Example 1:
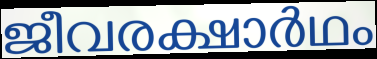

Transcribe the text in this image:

ജീവരക്ഷാർഥം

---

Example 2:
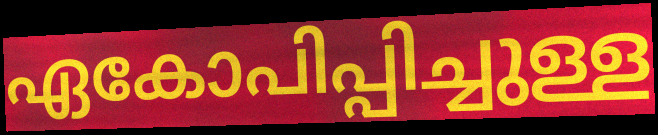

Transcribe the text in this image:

ഏകോപിപ്പിച്ചുള്ള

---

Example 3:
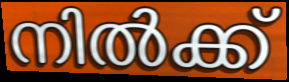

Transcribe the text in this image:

നിൽക്ക്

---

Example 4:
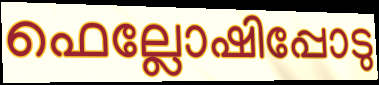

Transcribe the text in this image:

ഫെല്ലോഷിപ്പോടു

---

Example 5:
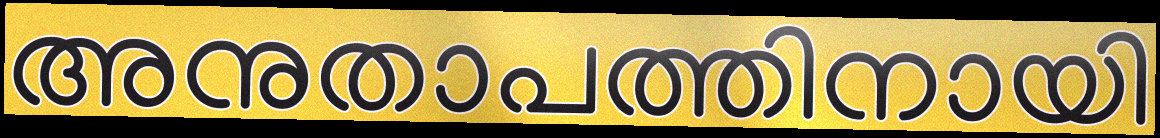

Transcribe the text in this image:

അനുതാപത്തിനായി